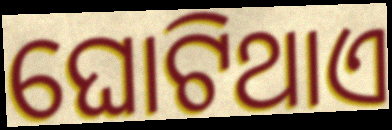
ଘୋଟିଥାଏ